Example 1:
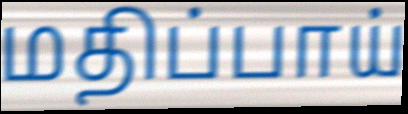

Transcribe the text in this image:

மதிப்பாய்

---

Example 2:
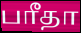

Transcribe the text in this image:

பரீதா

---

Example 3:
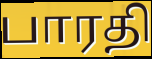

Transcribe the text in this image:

பாரதி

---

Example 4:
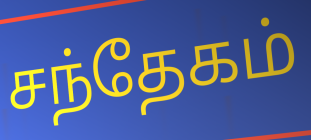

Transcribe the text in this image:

சந்தேகம்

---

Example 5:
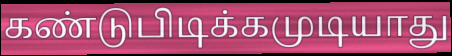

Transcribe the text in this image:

கண்டுபிடிக்கமுடியாது